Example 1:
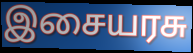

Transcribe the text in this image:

இசையரசு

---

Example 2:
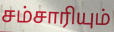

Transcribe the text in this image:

சம்சாரியும்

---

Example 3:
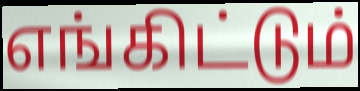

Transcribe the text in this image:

எங்கிட்டும்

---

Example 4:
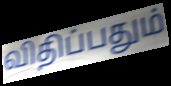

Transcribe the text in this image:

விதிப்பதும்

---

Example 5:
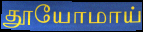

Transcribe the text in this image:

தூயோமாய்